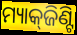
ମ୍ୟାକ୍‌ଜିଣ୍ଟି